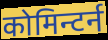
कोमिन्टर्न